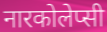
नारकोलेप्सी